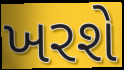
ખરશે